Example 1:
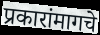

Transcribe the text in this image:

प्रकारांमागचे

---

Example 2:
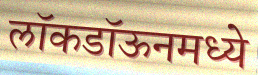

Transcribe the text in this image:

लॉकडॉऊनमध्ये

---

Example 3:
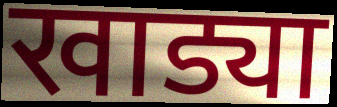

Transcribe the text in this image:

खाड्या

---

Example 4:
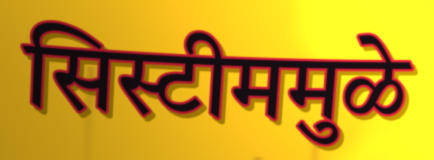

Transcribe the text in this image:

सिस्टीममुळे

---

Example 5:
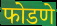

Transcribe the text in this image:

फोडणे